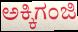
ಅಕ್ಕಿಗಂಜಿ